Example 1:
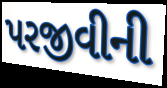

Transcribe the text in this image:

પરજીવીની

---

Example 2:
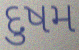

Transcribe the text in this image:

દુષમ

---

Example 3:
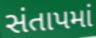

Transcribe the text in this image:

સંતાપમાં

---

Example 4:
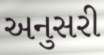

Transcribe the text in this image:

અનુસરી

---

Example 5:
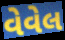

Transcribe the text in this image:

વેવેલ